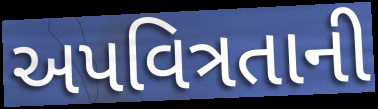
અપવિત્રતાની